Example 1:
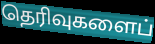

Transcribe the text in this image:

தெரிவுகளைப்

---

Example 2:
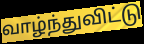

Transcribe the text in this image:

வாழ்ந்துவிட்டு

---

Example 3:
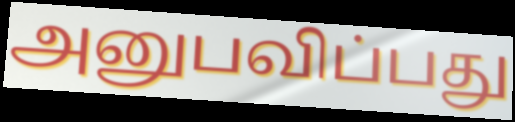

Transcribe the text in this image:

அனுபவிப்பது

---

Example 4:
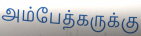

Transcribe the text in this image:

அம்பேத்கருக்கு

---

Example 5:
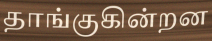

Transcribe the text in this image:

தாங்குகின்றன